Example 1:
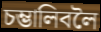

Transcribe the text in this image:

চম্ভালিবলৈ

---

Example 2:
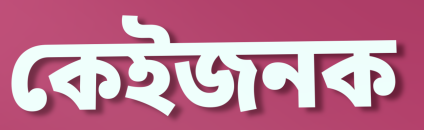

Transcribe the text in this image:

কেইজনক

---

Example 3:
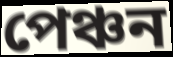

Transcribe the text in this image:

পেঞ্চন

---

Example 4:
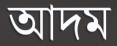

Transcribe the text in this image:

আদম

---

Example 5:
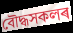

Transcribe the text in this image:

বৌদ্ধসকলৰ